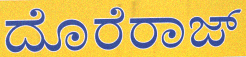
ದೊರೆರಾಜ್